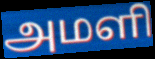
அமளி